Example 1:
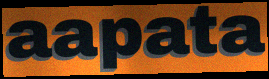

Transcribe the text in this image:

aapata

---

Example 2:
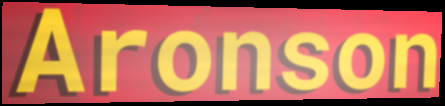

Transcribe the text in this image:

Aronson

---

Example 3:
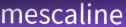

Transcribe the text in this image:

mescaline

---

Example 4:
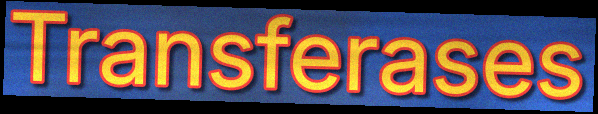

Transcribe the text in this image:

Transferases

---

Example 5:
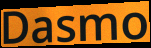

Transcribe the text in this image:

Dasmo